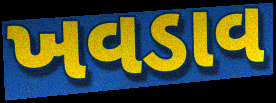
ખવડાવ